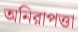
অনিরাপত্তা